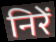
निरें